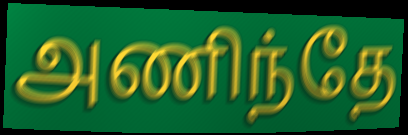
அணிந்தே